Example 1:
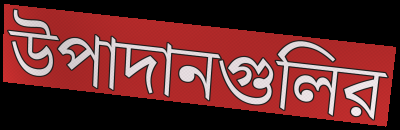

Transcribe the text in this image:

উপাদানগুলির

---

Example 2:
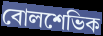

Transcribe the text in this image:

বোলশেভিক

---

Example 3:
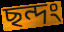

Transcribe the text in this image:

ছন্দং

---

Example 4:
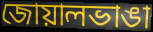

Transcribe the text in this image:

জোয়ালভাঙা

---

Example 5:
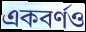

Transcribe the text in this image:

একবর্ণও